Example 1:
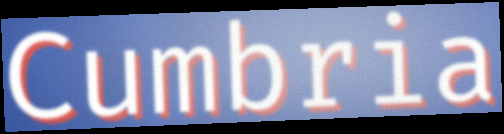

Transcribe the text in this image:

Cumbria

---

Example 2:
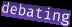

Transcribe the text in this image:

debating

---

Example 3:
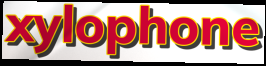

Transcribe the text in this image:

xylophone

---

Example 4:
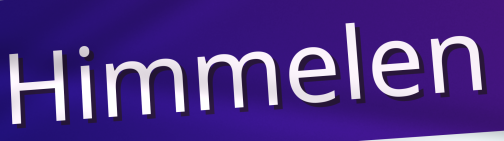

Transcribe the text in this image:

Himmelen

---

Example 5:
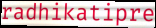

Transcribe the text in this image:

radhikatipre